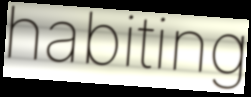
habiting